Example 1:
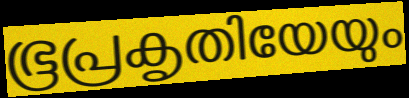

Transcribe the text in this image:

ഭൂപ്രകൃതിയേയും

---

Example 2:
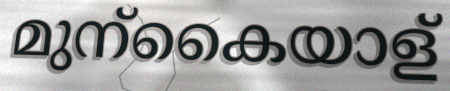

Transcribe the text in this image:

മുന്കൈയാള്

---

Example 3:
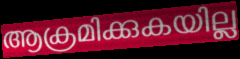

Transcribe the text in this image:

ആക്രമിക്കുകയില്ല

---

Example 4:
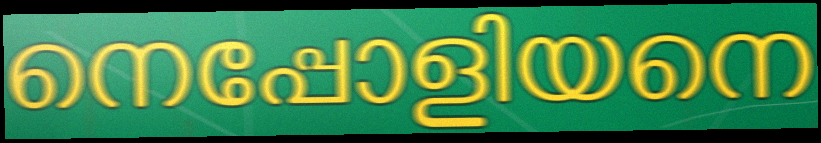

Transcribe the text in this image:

നെപ്പോളിയനെ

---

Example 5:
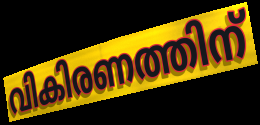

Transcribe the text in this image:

വികിരണത്തിന്